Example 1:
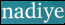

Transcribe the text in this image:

nadiye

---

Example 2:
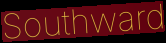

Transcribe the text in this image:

Southward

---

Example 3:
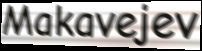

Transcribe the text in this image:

Makavejev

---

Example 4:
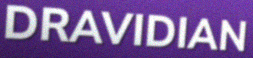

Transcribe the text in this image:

DRAVIDIAN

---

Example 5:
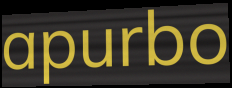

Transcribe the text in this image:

apurbo